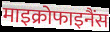
माइक्रोफाइनैंस